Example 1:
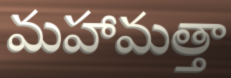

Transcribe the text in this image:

మహామత్తా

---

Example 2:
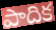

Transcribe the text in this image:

పాదిక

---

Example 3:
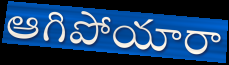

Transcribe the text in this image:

ఆగిపోయారా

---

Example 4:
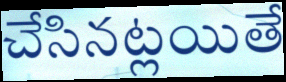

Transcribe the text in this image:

చేసినట్లయితే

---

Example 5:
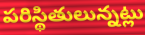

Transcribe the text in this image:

పరిస్థితులున్నట్లు